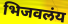
भिजवलंय